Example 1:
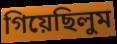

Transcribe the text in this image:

গিয়েছিলুম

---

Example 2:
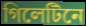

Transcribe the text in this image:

গিলেটিনে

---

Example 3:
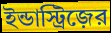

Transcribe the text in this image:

ইন্ডাস্ট্রিজ়ের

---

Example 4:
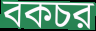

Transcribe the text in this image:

বকচর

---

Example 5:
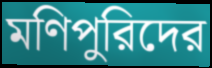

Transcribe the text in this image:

মণিপুরিদের